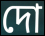
দো